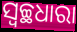
ସ୍ୱଚ୍ଛଧାରା